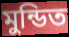
মুন্ডিত